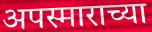
अपस्माराच्या